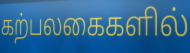
கற்பலகைகளில்